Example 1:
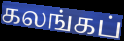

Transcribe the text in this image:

கலங்கப்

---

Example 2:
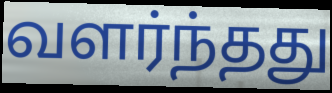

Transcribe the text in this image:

வளர்ந்தது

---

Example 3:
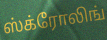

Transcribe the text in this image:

ஸ்க்ரோலிங்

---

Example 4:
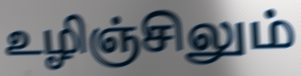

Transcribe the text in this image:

உழிஞ்சிலும்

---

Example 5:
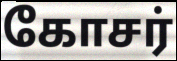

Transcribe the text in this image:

கோசர்